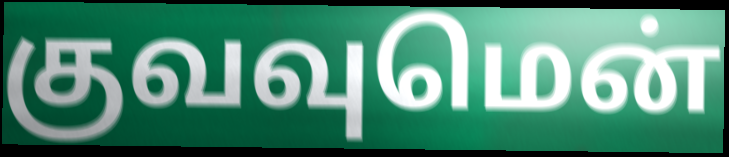
குவவுமென்